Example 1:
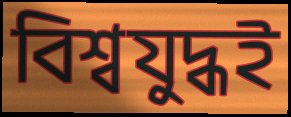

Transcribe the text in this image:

বিশ্বযুদ্ধই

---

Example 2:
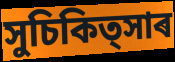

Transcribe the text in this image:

সুচিকিত্সাৰ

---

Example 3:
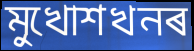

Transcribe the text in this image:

মুখোশখনৰ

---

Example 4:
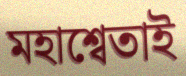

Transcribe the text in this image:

মহাশ্বেতাই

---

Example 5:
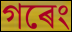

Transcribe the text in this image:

গৰেং